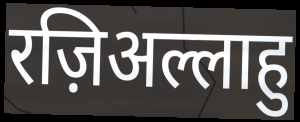
रज़िअल्लाहु